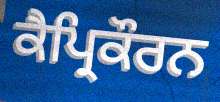
ਕੈਪ੍ਰਿਕੌਰਨ